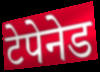
टेपेनेड